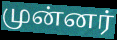
முன்னர்